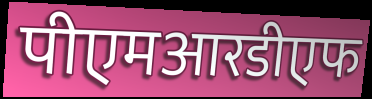
पीएमआरडीएफ